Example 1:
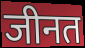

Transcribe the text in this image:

जीनत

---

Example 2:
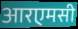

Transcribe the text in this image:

आरएमसी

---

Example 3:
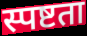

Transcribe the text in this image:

स्पष्टता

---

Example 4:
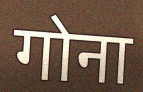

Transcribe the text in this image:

गोना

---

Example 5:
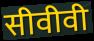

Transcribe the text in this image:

सीवीवी